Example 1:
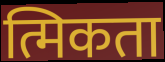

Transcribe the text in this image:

त्मिकता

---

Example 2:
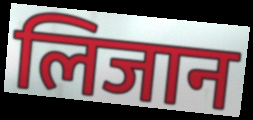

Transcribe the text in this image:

लिजान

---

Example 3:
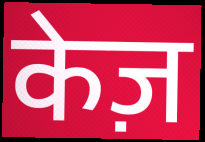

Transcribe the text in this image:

केज़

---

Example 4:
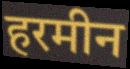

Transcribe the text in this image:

हरमीन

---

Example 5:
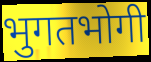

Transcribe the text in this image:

भुगतभोगी